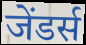
जेंडर्स